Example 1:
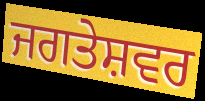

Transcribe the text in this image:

ਜਗਤੇਸ਼ਵਰ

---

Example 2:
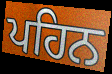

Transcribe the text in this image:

ਪਹਿਨ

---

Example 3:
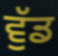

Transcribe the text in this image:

ਵੁੱਡ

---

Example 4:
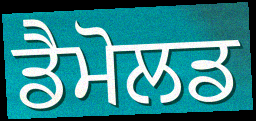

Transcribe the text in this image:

ਡੈਮੋਲਡ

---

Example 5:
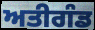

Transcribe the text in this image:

ਅਤੀਗੰਡ